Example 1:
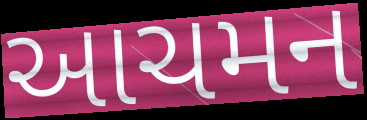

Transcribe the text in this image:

આચમન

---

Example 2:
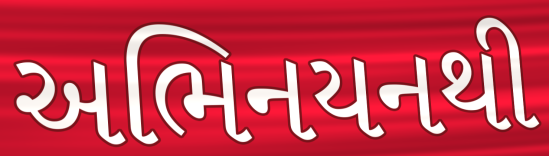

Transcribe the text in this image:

અભિનયનથી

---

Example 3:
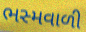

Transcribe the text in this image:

ભસ્મવાળી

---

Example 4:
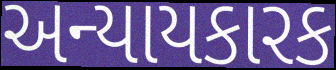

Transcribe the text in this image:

અન્યાયકારક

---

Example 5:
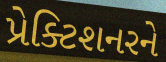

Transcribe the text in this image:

પ્રેક્ટિશનરને